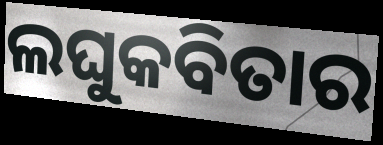
ଲଘୁକବିତାର